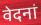
वेदनां